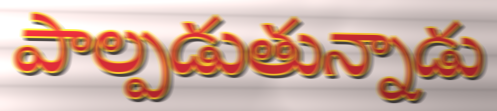
పాల్పడుతున్నాడు